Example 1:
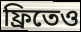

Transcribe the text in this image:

ফ্রিতেও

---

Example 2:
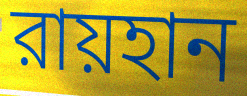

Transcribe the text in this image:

রায়হান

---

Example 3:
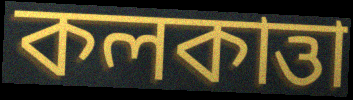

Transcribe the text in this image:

কলকাত্তা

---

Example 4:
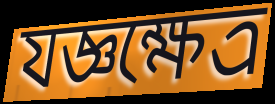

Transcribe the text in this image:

যজ্ঞক্ষেত্র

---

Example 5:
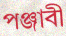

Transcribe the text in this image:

পঞ্জাবী